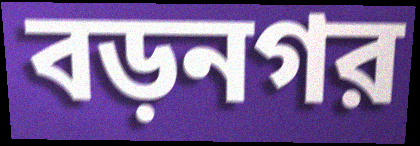
বড়নগর